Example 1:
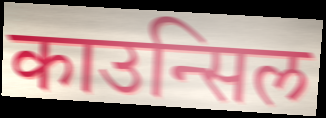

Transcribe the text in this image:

काउन्सिल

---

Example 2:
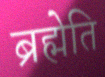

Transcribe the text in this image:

ब्रह्मेति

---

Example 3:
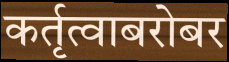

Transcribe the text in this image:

कर्तृत्वाबरोबर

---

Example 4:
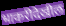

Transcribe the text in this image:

भाकरीदेखील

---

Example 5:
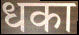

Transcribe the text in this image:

धका